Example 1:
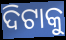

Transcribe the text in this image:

ଦିଟାକୁ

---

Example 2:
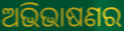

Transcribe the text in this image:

ଅଭିଭାଷଣର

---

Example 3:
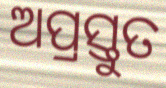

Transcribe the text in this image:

ଅପ୍ରସ୍ତୁତ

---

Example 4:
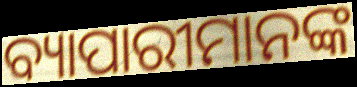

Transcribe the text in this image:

ବ୍ୟାପାରୀମାନଙ୍କ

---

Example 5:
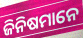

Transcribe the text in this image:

ଜିନିଷମାନେ